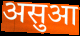
असुआ